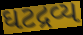
ઘટદ્રવ્ય